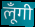
लूँगी